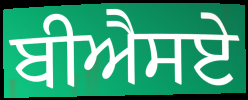
ਬੀਐਸਏ